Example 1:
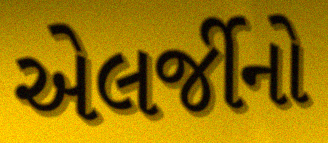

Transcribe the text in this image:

એલર્જીનો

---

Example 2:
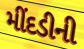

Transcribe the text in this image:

મીંદડીની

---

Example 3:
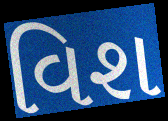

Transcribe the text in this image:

વિશ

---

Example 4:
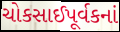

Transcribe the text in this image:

ચોકસાઈપૂર્વકનાં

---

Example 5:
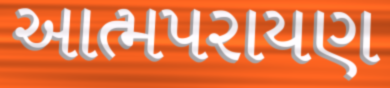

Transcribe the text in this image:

આત્મપરાયણ